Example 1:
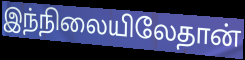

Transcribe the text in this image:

இந்நிலையிலேதான்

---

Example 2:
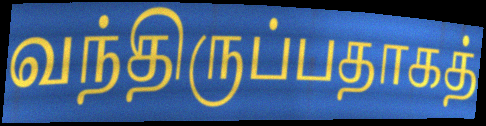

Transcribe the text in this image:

வந்திருப்பதாகத்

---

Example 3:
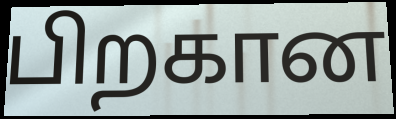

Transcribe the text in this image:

பிறகான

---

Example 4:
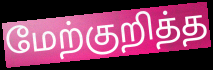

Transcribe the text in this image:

மேற்குறித்த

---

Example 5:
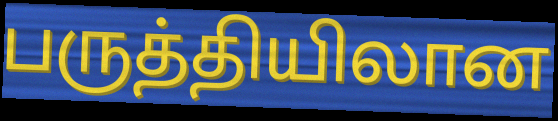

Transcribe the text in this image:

பருத்தியிலான